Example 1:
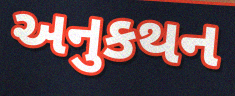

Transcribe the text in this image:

અનુકથન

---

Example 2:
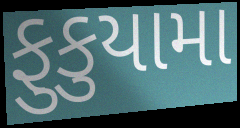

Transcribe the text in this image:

ફુકુયામા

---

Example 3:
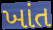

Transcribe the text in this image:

ખાંત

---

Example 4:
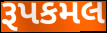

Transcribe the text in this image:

રૂપકમલ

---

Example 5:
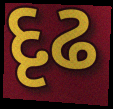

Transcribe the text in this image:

દૃઢ